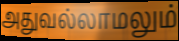
அதுவல்லாமலும்